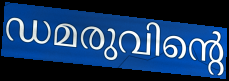
ഡമരുവിന്റെ